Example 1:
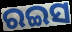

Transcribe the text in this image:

ରଇସ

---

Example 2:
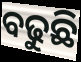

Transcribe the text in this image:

ବଢୁଛି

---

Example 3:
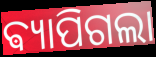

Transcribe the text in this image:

ଵ୍ୟାପିଗଲା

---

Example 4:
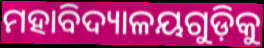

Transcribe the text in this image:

ମହାବିଦ୍ୟାଳୟଗୁଡ଼ିକୁ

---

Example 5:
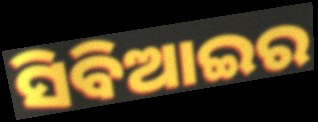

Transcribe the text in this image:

ସିବିଆଇର